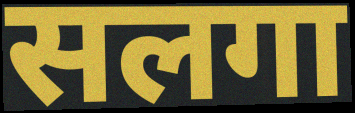
सलगा